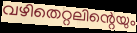
വഴിതെറ്റലിന്റെയും